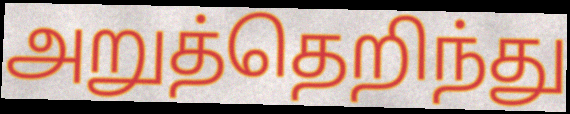
அறுத்தெறிந்து